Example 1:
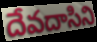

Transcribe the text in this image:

దేవదాసిని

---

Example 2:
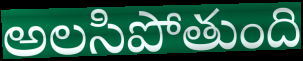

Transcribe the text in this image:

అలసిపోతుంది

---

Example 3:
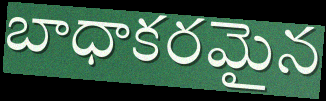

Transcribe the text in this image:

బాధాకరమైన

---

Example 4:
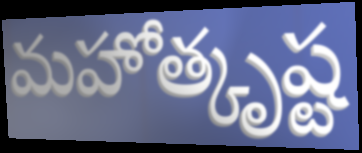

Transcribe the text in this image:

మహోత్కృష్ట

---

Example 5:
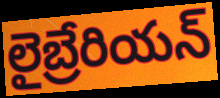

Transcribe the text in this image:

లైబ్రేరియన్